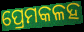
ପ୍ରେମକଳହ